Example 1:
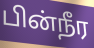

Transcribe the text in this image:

பின்நீர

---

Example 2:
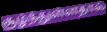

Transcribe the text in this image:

சூழ்ந்துள்ளதால்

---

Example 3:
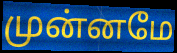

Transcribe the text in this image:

முன்னமே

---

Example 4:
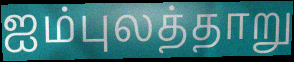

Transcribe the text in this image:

ஐம்புலத்தாறு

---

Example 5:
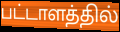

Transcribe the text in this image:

பட்டாளத்தில்